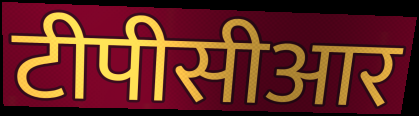
टीपीसीआर